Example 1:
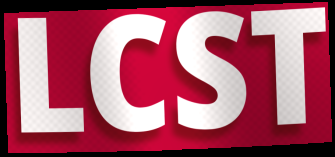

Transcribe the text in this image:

LCST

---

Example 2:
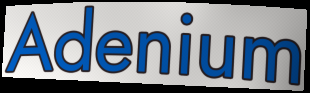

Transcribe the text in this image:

Adenium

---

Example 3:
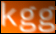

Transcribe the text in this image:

kgg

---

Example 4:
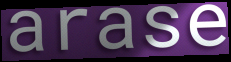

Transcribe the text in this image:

arase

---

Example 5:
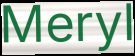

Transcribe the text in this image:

Meryl